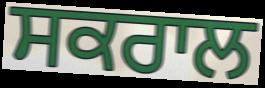
ਸਕਰਾਲ